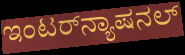
ಇಂಟರ್‌ನ್ಯಾಷನಲ್